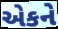
એકને